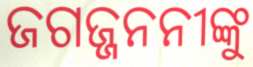
ଜଗଜ୍ଜନନୀଙ୍କୁ